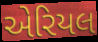
એરિયલ